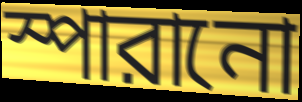
স্পারানো